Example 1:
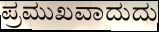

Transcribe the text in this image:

ಪ್ರಮುಖವಾದುದು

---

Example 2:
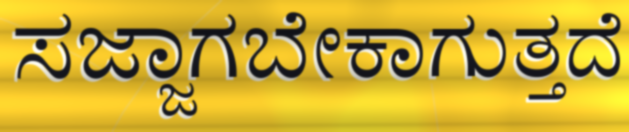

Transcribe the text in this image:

ಸಜ್ಜಾಗಬೇಕಾಗುತ್ತದೆ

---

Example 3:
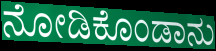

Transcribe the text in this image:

ನೋಡಿಕೊಂಡಾನು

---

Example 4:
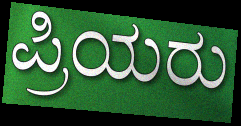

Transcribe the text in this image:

ಪ್ರಿಯರು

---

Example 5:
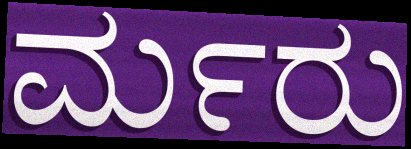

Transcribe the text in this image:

ರ್ಮರು